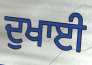
ਦੁਖਾਈ